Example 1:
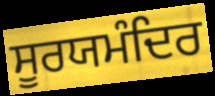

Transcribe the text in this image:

ਸੂਰਯਮੰਦਿਰ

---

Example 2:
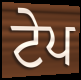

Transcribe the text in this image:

ਟੇਪ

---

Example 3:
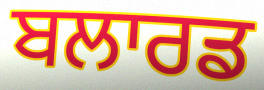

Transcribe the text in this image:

ਬਲਾਰਡ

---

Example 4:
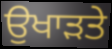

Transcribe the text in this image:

ਉਖਾੜਤੇ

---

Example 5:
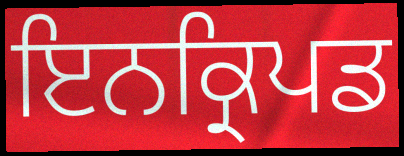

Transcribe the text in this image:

ਇਨਕ੍ਰਿਪਡ